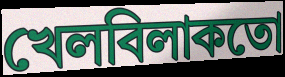
খেলবিলাকতো